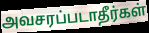
அவசரப்படாதீர்கள்